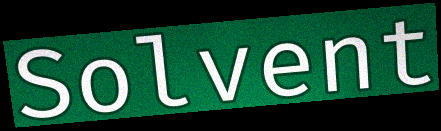
Solvent